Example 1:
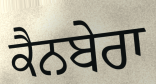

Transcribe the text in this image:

ਕੈਨਬੇਰਾ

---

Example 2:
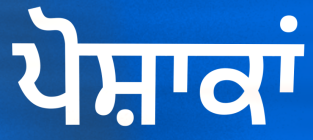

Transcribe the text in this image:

ਪੋਸ਼ਾਕਾਂ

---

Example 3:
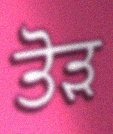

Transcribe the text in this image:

ਤੋੜ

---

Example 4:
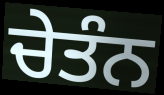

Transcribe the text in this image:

ਚੇਤੰਨ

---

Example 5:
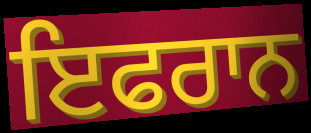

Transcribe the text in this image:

ਇਫਰਾਨ